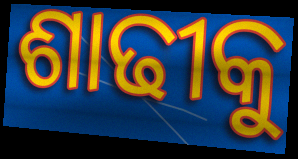
ଶାଢୀକୁ